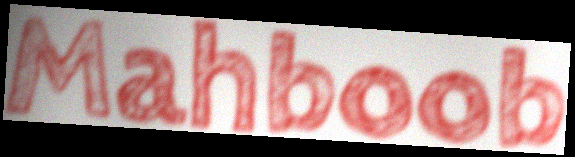
Mahboob